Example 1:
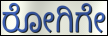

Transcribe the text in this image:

ರೋಗಿಗೇ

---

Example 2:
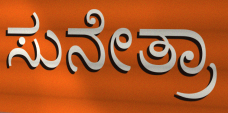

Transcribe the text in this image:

ಸುನೇತ್ರಾ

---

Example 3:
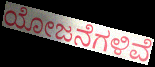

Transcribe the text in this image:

ಯೋಜನೆಗಳಿವೆ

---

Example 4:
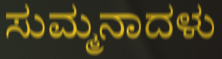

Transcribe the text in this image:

ಸುಮ್ಮನಾದಳು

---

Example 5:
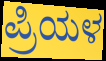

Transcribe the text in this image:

ಪ್ರಿಯಳ